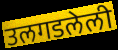
उलगडलेली